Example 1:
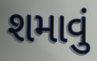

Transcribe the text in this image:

શમાવું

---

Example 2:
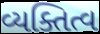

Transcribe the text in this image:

વ્યક્તિત્વ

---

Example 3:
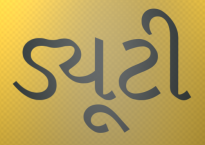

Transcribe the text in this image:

ડ્યૂટી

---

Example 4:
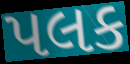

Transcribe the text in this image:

પલક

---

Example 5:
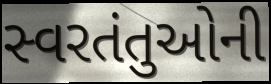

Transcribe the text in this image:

સ્વરતંતુઓની